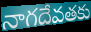
నాగదేవతకు